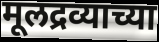
मूलद्रव्याच्या